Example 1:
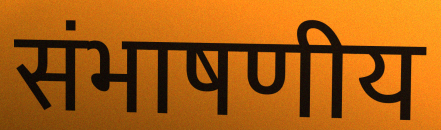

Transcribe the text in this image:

संभाषणीय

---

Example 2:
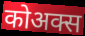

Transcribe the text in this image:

कोअक्स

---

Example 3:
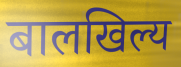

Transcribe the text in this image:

बालखिल्य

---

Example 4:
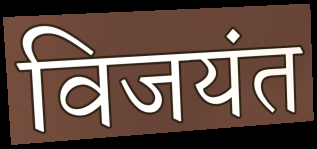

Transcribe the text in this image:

विजयंत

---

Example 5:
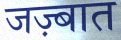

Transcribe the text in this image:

जज़्बात